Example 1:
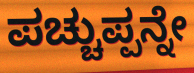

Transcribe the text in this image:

ಪಚ್ಚುಪ್ಪನ್ನೇ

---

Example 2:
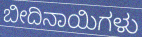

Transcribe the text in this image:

ಬೀದಿನಾಯಿಗಳು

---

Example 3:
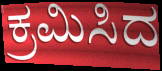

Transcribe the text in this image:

ಕ್ರಮಿಸಿದ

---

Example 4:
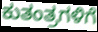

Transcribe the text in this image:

ಕುತಂತ್ರಗಳಿಗೆ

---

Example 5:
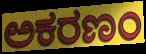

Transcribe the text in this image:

ಅಕರಣಂ